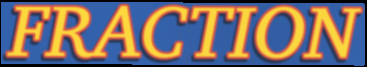
FRACTION